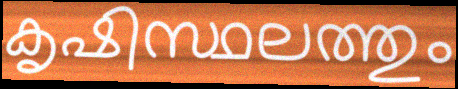
കൃഷിസ്ഥലത്തും